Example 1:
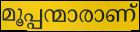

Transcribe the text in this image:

മൂപ്പന്മാരാണ്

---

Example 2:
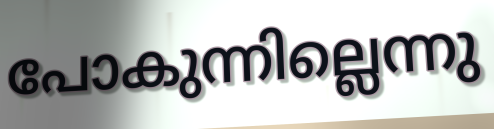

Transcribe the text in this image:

പോകുന്നില്ലെന്നു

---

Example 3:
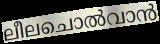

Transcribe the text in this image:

ലീലചൊൽവാൻ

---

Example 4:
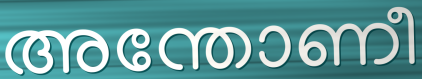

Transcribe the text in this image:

അന്തോണീ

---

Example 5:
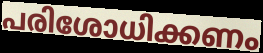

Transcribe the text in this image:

പരിശോധിക്കണം